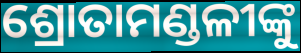
ଶ୍ରୋତାମଣ୍ଡଳୀଙ୍କୁ